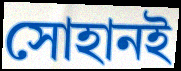
সোহানই